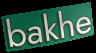
bakhe